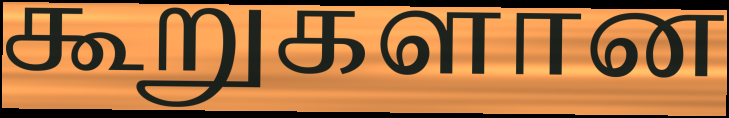
கூறுகளான